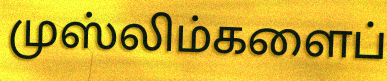
முஸ்லிம்களைப்